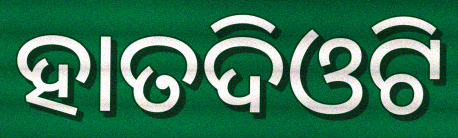
ହାତଦିଓଟି